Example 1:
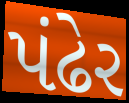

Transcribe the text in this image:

પંઢેર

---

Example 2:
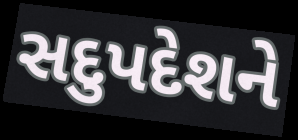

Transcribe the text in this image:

સદુપદેશને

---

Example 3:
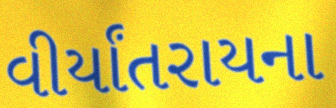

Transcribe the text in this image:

વીર્યાંતરાયના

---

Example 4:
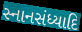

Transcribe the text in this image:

સ્નાનસંધ્યાદિ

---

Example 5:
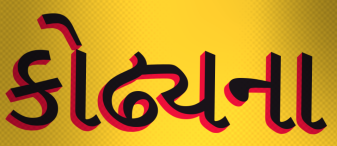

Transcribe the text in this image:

કોઢ્યના